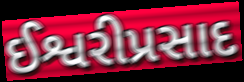
ઈશ્વરીપ્રસાદ